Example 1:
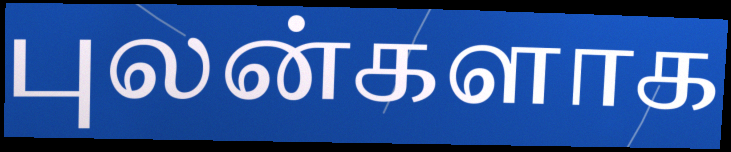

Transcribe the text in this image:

புலன்களாக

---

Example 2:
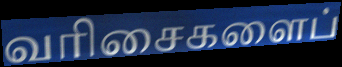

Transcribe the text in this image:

வரிசைகளைப்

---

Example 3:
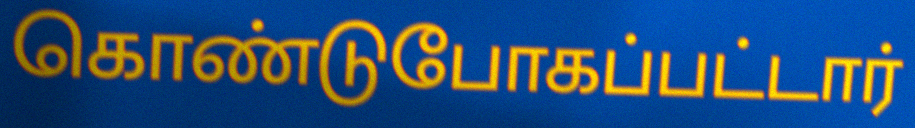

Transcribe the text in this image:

கொண்டுபோகப்பட்டார்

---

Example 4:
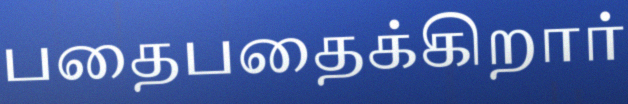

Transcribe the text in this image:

பதைபதைக்கிறார்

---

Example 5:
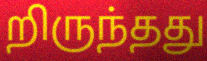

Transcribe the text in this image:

றிருந்தது